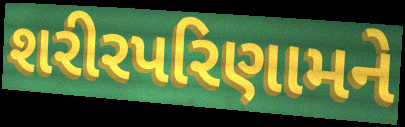
શરીરપરિણામને